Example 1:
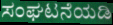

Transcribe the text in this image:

ಸಂಘಟನೆಯಡಿ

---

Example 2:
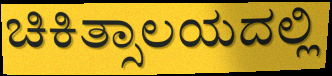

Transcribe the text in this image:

ಚಿಕಿತ್ಸಾಲಯದಲ್ಲಿ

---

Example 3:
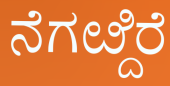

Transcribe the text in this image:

ನೆಗೞ್ದಿರೆ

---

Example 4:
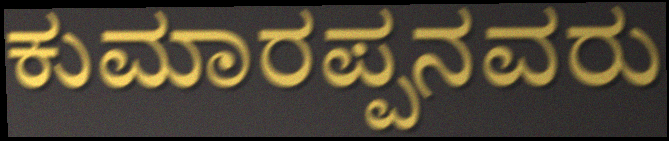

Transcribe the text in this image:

ಕುಮಾರಪ್ಪನವರು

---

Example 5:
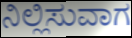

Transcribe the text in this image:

ನಿಲ್ಲಿಸುವಾಗ